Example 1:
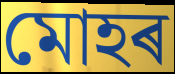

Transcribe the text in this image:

মোহৰ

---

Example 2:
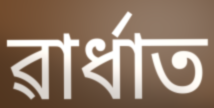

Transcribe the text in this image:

ৱাৰ্ধাত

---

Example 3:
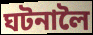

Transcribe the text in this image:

ঘটনালৈ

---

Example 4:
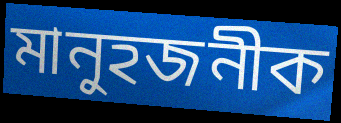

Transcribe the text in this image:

মানুহজনীক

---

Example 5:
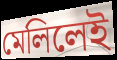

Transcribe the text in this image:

মেলিলেই